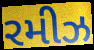
રમીઝ